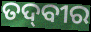
ତଦ୍‌ବୀର